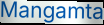
Mangamta